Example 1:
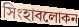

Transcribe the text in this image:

সিংহাবলোকন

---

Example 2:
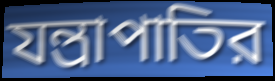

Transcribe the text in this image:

যন্ত্রাপাতির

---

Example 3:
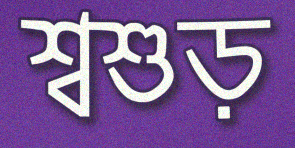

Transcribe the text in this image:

শ্বশুড়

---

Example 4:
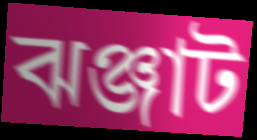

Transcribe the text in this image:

ঝঞ্জাট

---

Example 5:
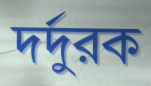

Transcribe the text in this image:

দর্দুরক